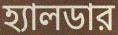
হ্যালডার